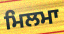
ਮਿਲਮਾ